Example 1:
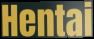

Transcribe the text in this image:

Hentai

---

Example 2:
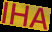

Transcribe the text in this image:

IHA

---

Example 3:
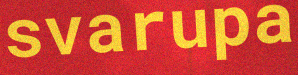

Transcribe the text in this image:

svarupa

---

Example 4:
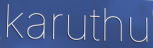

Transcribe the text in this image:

karuthu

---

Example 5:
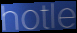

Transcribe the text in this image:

hotle